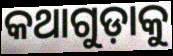
କଥାଗୁଡ଼ାକୁ